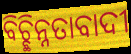
ବିଚ୍ଛିନ୍ନତାବାଦୀ